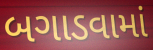
બગાડવામાં